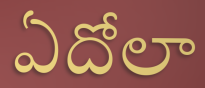
ఏదోలా